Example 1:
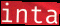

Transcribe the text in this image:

inta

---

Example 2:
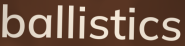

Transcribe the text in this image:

ballistics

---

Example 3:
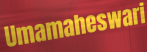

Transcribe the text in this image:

Umamaheswari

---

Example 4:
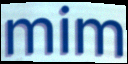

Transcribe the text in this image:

mim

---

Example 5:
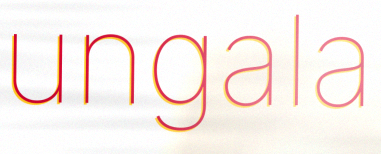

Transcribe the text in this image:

ungala